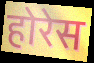
होरेस